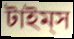
টাইম্স